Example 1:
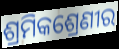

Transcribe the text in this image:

ଶ୍ରମିକଶ୍ରେଣୀର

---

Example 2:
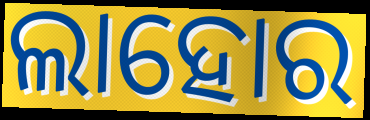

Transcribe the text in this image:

ଲାହୋର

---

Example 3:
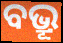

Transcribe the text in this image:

ବଭ୍ରୂ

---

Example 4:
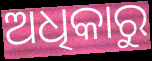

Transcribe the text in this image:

ଅଧିକାରୁ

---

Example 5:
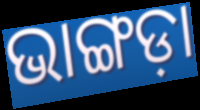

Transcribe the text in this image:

ଭାଙ୍ଗଡ଼ା